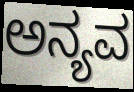
ಅನ್ಯವ